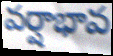
వర్షాభావ